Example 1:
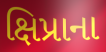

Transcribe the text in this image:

ક્ષિપ્રાના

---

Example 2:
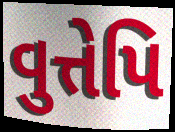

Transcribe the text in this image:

વુત્તેપિ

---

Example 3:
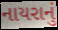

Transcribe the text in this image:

નાયરાનું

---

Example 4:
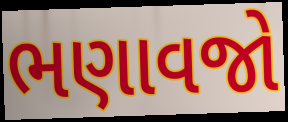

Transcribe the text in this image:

ભણાવજો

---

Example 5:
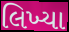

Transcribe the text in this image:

લિખ્યા